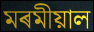
মৰমীয়াল